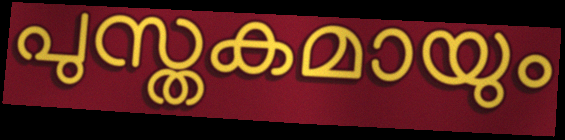
പുസ്തകമായും